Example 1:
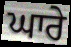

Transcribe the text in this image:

ਘਾਰੇ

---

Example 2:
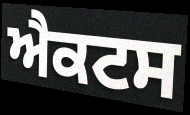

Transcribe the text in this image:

ਐਕਟਸ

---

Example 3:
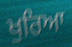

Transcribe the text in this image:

ਖੁਰਿਆ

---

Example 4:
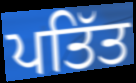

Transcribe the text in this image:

ਪਤਿੱਤ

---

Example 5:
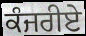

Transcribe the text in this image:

ਕੰਜਰੀਏ